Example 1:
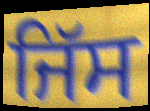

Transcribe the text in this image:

ਜਿੱਸ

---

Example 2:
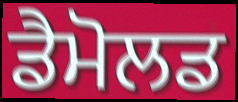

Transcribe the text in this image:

ਡੈਮੋਲਡ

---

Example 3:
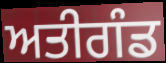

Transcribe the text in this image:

ਅਤੀਗੰਡ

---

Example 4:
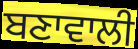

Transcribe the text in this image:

ਬਣਾਵਾਲੀ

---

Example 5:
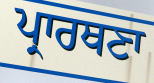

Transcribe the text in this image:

ਪ੍ਰਾਰਥਣਾ